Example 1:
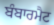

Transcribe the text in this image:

ਬੰਬਾਰਮੈਟ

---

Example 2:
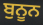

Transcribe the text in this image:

ਬੁਨੂਨ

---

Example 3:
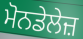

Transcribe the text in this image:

ਮੋਨਡੇਲੇਜ਼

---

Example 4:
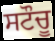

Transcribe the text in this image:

ਸਟੌਚੂ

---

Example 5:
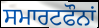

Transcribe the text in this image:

ਸਮਾਰਟਫੌਨਾਂ